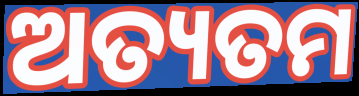
ଅତ୍ୟତମ